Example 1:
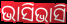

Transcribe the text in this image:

ଭାସିଭାସି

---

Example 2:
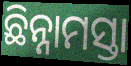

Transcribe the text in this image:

ଛିନ୍ନାମସ୍ତା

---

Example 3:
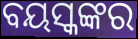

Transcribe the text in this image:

ବୟସ୍କଙ୍କର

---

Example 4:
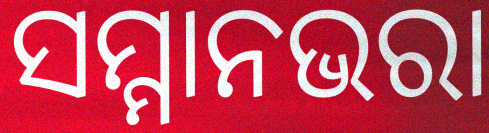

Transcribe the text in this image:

ସମ୍ମାନଭରା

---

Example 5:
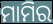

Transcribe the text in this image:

ମାମିର